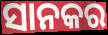
ସାନକର